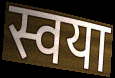
स्वया